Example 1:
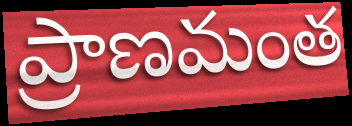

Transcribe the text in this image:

ప్రాణమంత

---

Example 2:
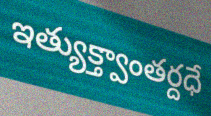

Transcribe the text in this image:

ఇత్యుక్త్వాంతర్దధే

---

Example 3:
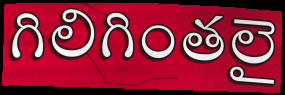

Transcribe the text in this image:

గిలిగింతలై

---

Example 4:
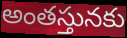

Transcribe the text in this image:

అంతస్తునకు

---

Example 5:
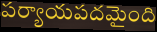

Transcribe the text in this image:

పర్యాయపదమైంది